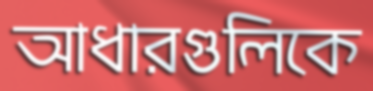
আধারগুলিকে